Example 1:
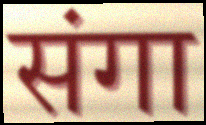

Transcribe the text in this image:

संगा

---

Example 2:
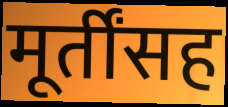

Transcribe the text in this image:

मूर्तींसह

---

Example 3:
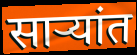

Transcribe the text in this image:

साऱ्यांत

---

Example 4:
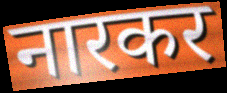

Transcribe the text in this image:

नारकर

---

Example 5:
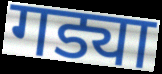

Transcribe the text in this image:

गड्या